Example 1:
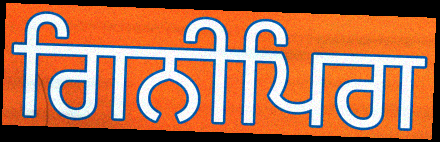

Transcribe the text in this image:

ਗਿਨੀਪਿਗ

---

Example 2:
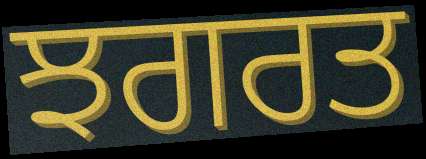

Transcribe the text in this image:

ਝਗਰਤ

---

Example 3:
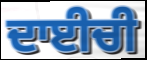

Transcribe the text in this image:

ਦਾਈਚੀ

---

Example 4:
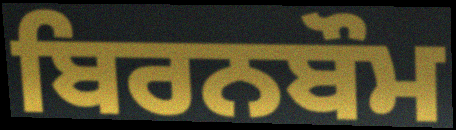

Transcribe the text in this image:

ਬਿਰਨਬੌਮ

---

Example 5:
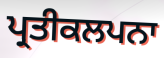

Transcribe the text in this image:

ਪ੍ਰਤੀਕਲਪਨਾ